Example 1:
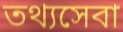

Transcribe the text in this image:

তথ্যসেবা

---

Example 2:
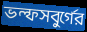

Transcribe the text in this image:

ভল্ফসবুর্গের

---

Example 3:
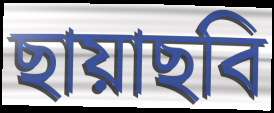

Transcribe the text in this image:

ছায়াছবি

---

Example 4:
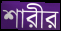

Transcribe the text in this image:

শারীর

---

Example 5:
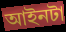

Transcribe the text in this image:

আইনটা